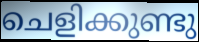
ചെളിക്കുണ്ടു